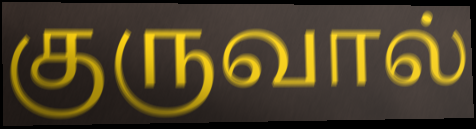
குருவால்